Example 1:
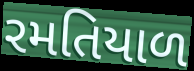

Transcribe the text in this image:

રમતિયાળ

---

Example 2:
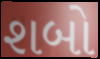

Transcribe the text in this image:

શબો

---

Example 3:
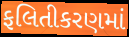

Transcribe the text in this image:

ફલિતીકરણમાં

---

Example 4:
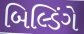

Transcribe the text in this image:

બિલ્ડિંગે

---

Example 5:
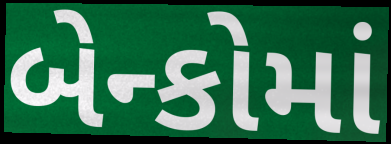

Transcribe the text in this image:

બેન્કોમાં